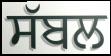
ਸੱਬਲ